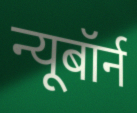
न्यूबॉर्न